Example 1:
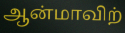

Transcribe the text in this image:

ஆன்மாவிற்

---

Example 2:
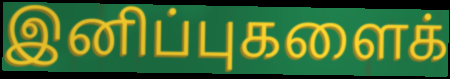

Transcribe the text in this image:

இனிப்புகளைக்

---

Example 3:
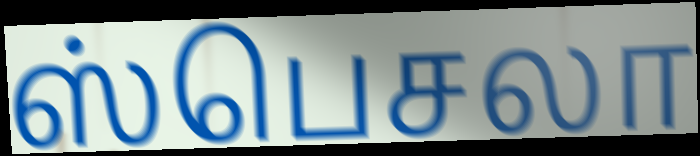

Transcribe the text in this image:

ஸ்பெசலா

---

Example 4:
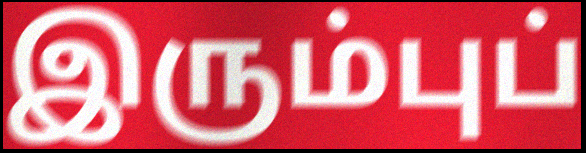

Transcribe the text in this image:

இரும்புப்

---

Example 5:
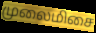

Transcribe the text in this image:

முலைமிசை